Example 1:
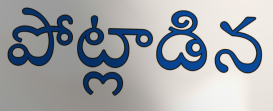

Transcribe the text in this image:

పోట్లాడిన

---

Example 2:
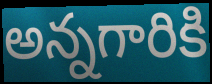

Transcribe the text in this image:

అన్నగారికి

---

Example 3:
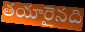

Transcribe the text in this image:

తయారైనది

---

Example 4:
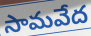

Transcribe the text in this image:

సామవేద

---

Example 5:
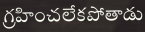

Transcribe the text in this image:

గ్రహించలేకపోతాడు